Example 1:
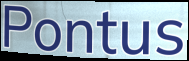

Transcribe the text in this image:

Pontus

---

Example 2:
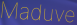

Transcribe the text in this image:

Maduve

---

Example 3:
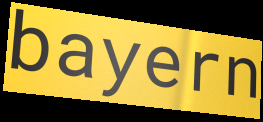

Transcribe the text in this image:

bayern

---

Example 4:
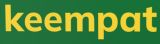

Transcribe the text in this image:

keempat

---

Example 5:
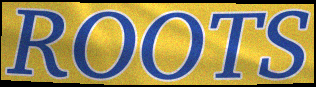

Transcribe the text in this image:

ROOTS